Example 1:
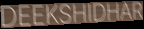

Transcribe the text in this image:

DEEKSHIDHAR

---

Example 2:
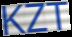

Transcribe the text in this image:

KZT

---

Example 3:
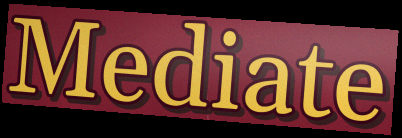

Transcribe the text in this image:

Mediate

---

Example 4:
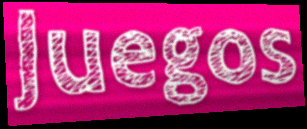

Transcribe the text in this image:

Juegos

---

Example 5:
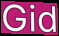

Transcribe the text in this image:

Gid